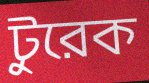
টুরেক